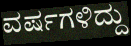
ವರ್ಷಗಳಿದ್ದು